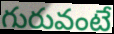
గురువంటే